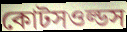
কোটসওল্ডস